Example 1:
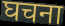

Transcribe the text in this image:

घचना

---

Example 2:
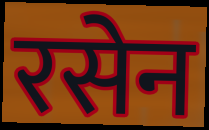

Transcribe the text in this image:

रसेन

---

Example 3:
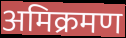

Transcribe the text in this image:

अमिक्रमण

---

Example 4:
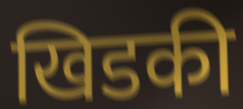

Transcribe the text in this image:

खिडकी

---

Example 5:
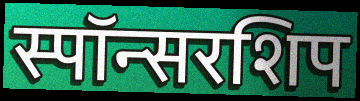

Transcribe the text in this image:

स्पॉन्सरशिप